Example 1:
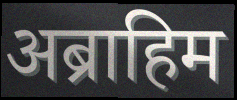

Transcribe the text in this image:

अब्राहिम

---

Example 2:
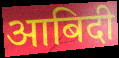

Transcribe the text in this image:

आबिदी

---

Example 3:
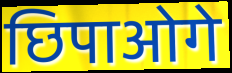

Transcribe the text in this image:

छिपाओगे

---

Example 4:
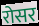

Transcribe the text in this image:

रोसर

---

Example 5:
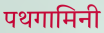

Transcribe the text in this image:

पथगामिनी